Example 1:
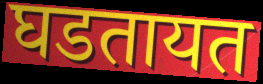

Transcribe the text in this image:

घडतायत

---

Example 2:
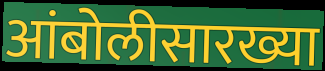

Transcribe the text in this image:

आंबोलीसारख्या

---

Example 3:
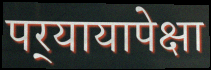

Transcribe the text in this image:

पर्यायापेक्षा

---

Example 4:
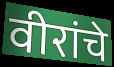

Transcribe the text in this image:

वीरांचे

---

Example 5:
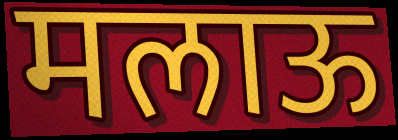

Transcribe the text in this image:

मलाऊ